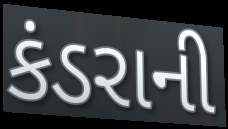
કંડરાની